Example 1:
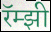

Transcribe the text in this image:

रॅम्झी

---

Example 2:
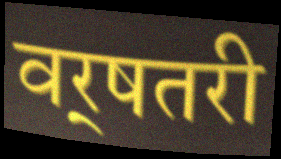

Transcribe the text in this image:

वर्षतरी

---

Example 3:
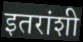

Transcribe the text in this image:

इतरांशी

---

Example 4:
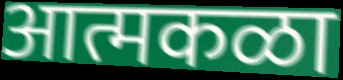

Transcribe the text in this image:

आत्मकळा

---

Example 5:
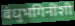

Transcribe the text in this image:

बंधुभगिनींशी